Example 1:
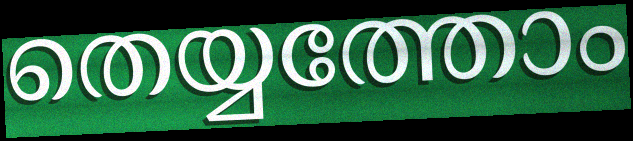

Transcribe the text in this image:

തെയ്യത്തോം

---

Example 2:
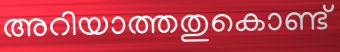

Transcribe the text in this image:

അറിയാത്തതുകൊണ്ട്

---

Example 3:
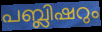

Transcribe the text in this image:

പബ്ലിഷറും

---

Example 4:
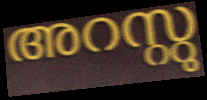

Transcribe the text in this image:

അറസ്റ്റു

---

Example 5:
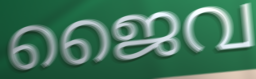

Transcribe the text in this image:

ജൈവ